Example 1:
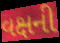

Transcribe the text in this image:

વક્ષની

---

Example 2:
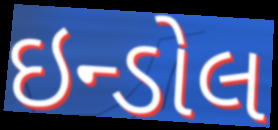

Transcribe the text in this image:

ઇન્ડોલ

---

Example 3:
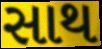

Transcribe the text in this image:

સાથ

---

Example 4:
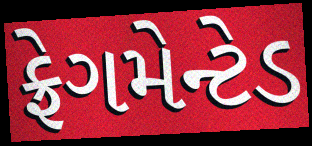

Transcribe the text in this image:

ફ્રેગમેન્ટેડ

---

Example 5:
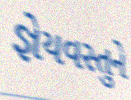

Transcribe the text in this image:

જ્ઞેયવસ્તુને